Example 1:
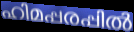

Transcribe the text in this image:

ഹിമപ്പരപ്പിൽ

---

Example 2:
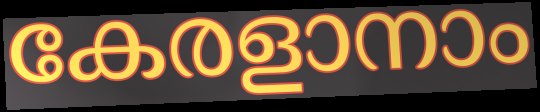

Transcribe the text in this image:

കേരളാനാം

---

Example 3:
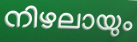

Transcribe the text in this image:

നിഴലായും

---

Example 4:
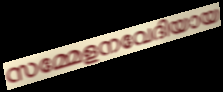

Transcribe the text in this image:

സമ്മേളനവേദിയായ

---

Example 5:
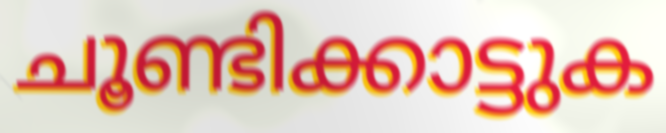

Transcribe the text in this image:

ചൂണ്ടിക്കാട്ടുക